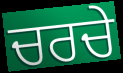
ਚਰਚੇ